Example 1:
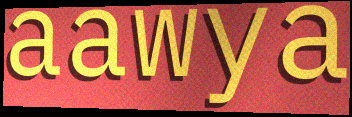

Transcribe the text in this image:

aawya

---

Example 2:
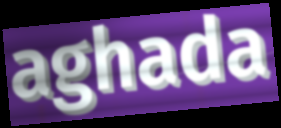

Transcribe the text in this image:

aghada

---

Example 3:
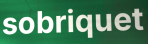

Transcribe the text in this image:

sobriquet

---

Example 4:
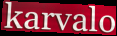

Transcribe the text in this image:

karvalo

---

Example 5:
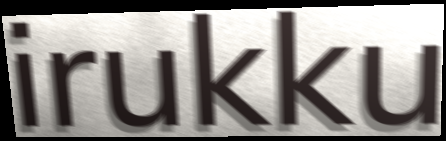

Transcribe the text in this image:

irukku